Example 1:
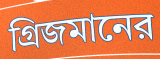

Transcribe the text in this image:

গ্রিজমানের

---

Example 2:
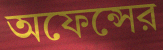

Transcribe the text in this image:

অফেন্সের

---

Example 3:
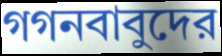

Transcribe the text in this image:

গগনবাবুদের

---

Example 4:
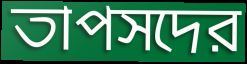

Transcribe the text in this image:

তাপসদের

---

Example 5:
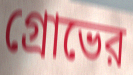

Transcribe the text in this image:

গ্রোভের